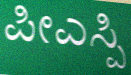
ಪೀಎಸ್ಪಿ